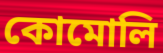
কোমোলি